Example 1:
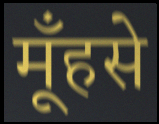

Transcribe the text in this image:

मूँहसे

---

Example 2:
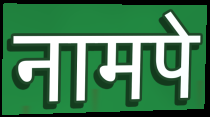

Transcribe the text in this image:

नामपे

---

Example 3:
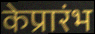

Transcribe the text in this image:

केप्रारंभ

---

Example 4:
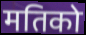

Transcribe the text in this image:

मतिको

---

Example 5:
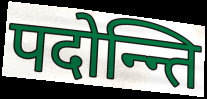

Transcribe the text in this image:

पदोन्न्ति